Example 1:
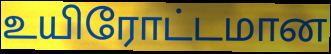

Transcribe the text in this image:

உயிரோட்டமான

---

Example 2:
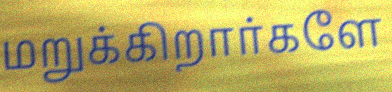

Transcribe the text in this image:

மறுக்கிறார்களே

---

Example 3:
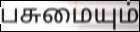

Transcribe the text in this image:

பசுமையும்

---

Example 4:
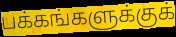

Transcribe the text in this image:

பக்கங்களுக்குக்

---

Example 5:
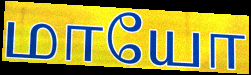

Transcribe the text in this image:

மாயோ